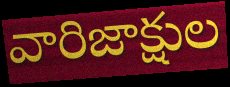
వారిజాక్షుల